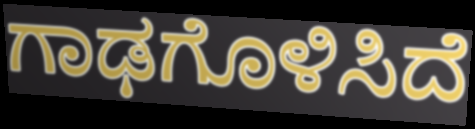
ಗಾಢಗೊಳಿಸಿದೆ